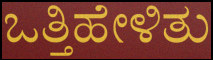
ಒತ್ತಿಹೇಳಿತು